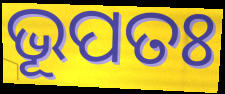
ଭୂପତଃ